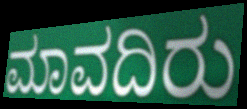
ಮಾವದಿರು